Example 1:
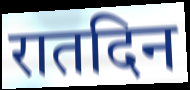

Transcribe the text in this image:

रातदिन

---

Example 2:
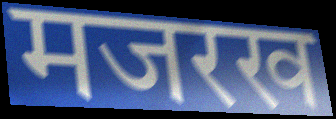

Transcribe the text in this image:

मजरख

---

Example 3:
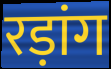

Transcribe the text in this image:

रड़ांग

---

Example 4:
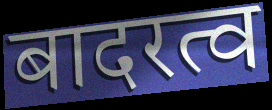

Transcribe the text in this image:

बादरत्व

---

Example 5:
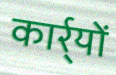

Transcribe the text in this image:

कार्र्यों